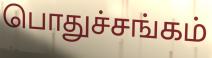
பொதுச்சங்கம்